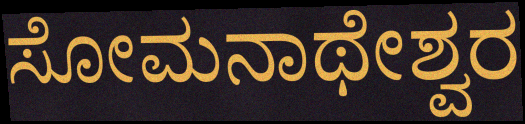
ಸೋಮನಾಥೇಶ್ವರ